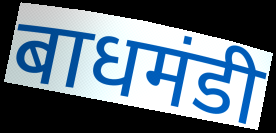
बाधमंडी